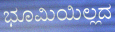
ಭೂಮಿಯಿಲ್ಲದ